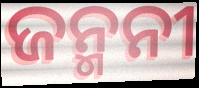
ଜନ୍ମନୀ